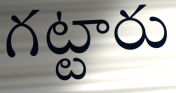
గట్టారు